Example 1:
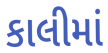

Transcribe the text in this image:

કાલીમાં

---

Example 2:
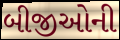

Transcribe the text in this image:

બીજીઓની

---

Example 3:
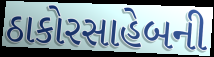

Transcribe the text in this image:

ઠાકોરસાહેબની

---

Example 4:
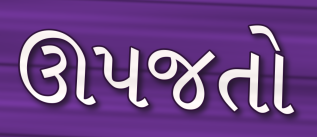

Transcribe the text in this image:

ઊપજતો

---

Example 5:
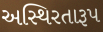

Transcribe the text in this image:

અસ્થિરતારૂપ